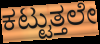
ಕಟ್ಟುತ್ತಲೇ